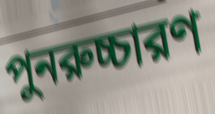
পুনরুচ্চারণ